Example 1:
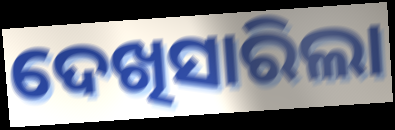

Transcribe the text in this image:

ଦେଖିସାରିଲା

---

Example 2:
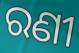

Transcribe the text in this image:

ରଣୀ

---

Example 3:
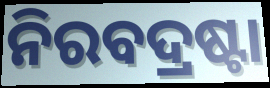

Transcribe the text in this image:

ନିରବଦ୍ରଷ୍ଟା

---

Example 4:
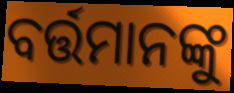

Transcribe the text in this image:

ବର୍ତ୍ତମାନଙ୍କୁ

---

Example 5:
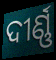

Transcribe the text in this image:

ଦୀର୍ଣ୍ଣ